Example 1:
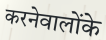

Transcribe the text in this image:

करनेवालोंके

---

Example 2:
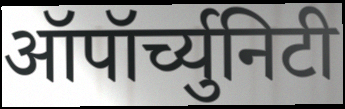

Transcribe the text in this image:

ऑपॉर्च्युनिटी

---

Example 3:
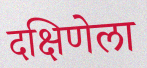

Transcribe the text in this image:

दक्षिणेला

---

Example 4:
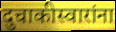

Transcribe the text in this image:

दुचाकीस्वारांना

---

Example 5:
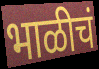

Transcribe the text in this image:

भाळीचं